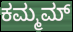
ಕಮ್ಮಮ್